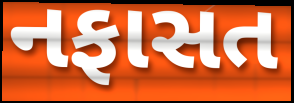
નફાસત